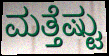
ಮತ್ತೆಷ್ಟು